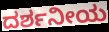
ದರ್ಶನೀಯ